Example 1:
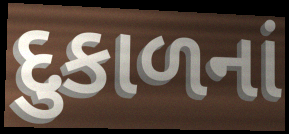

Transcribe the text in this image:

દુકાળનાં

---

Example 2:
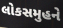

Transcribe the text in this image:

લોકસમુહને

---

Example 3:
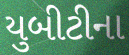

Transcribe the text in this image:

યુબીટીના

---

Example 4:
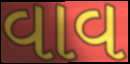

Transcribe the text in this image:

વાવ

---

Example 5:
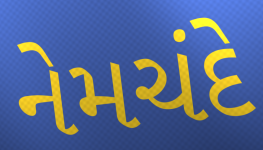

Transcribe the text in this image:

નેમચંદે